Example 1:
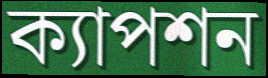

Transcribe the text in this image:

ক্যাপশন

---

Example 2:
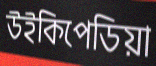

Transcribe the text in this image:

উইকিপেডিয়া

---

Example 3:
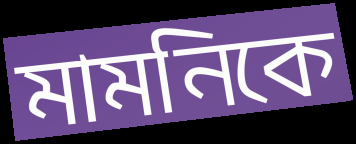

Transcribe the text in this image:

মামনিকে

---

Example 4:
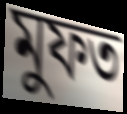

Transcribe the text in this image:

মুফত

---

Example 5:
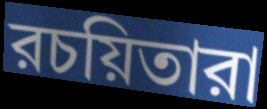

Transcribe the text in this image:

রচয়িতারা